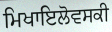
ਮਿਖਾਇਲੋਵਸਕੀ